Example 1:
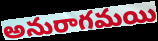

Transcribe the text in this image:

అనురాగమయి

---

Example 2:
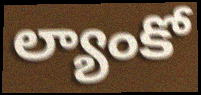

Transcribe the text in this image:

ల్యాంకో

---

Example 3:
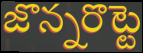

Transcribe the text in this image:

జొన్నరొట్టె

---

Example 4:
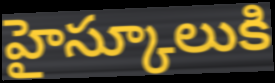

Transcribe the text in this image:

హైస్కూలుకి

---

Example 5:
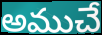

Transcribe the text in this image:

అముచే